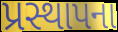
પ્રસ્થાપના